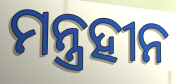
ମନ୍ତ୍ରହୀନ